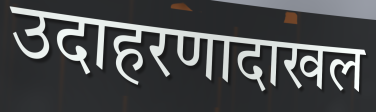
उदाहरणादाखल